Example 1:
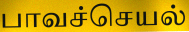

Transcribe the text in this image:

பாவச்செயல்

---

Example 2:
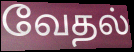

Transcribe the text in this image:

வேதல்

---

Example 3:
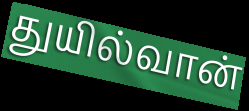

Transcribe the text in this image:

துயில்வான்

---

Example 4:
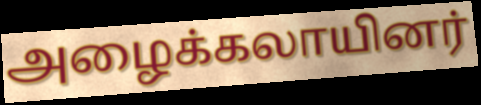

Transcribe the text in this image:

அழைக்கலாயினர்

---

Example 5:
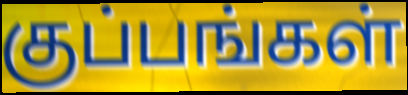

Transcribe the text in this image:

குப்பங்கள்